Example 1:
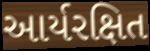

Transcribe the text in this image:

આર્યરક્ષિત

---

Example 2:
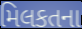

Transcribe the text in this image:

મિલકતના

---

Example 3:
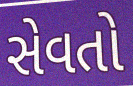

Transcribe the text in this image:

સેવતો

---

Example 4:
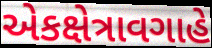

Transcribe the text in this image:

એકક્ષેત્રાવગાહે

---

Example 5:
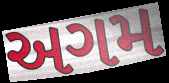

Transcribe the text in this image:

અગમ